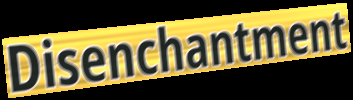
Disenchantment